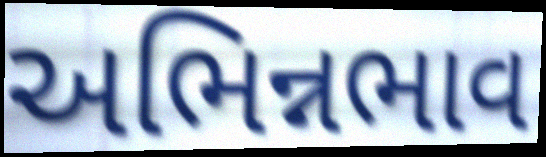
અભિન્નભાવ